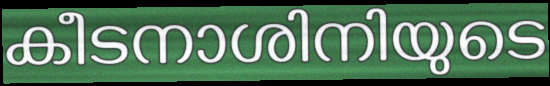
കീടനാശിനിയുടെ